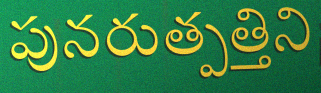
పునరుత్పత్తిని